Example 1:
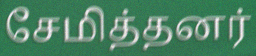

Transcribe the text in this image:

சேமித்தனர்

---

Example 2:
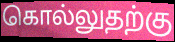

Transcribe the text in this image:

கொல்லுதற்கு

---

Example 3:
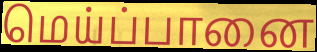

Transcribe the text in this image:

மெய்ப்பானை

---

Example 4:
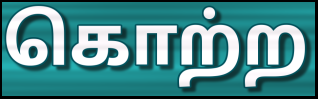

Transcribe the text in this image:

கொற்ற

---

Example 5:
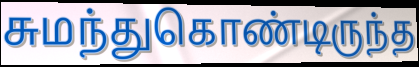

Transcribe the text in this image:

சுமந்துகொண்டிருந்த